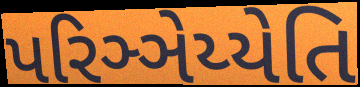
પરિઞ્ઞેય્યેતિ